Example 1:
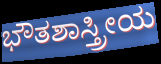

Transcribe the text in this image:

ಭೌತಶಾಸ್ತ್ರೀಯ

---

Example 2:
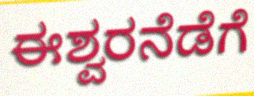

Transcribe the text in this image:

ಈಶ್ವರನೆಡೆಗೆ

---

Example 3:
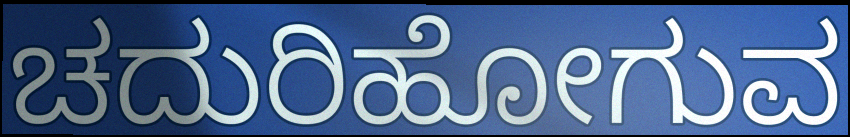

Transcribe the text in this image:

ಚದುರಿಹೋಗುವ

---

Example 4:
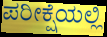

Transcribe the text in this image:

ಪರೀಕ್ಷೆಯಲ್ಲಿ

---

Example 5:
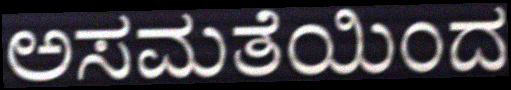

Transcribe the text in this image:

ಅಸಮತೆಯಿಂದ